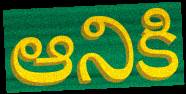
ఆనికి